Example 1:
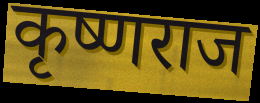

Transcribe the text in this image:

कृष्णराज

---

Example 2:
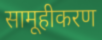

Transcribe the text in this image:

सामूहीकरण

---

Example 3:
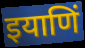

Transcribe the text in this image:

इयाणिं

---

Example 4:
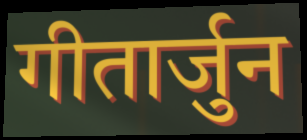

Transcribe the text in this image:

गीतार्जुन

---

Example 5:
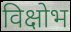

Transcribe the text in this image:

विक्षोभ